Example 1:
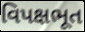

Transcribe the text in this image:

વિપક્ષભૂત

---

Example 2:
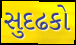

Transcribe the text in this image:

સુદઢકો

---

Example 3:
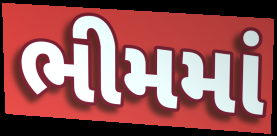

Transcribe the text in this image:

ભીમમાં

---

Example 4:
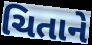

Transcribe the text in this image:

ચિતાને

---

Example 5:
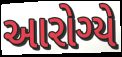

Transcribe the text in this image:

આરોગ્યે